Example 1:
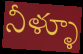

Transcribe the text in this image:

నీళ్ళూ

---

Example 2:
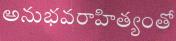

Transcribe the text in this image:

అనుభవరాహిత్యంతో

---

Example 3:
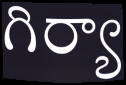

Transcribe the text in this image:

గిర్యా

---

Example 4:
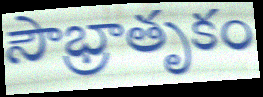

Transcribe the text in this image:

సౌభ్రాతృకం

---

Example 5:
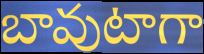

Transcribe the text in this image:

బావుటాగా